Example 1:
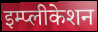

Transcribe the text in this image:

इम्प्लीकेशन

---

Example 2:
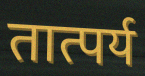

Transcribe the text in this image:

तात्पर्य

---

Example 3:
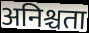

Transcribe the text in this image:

अनिश्चता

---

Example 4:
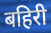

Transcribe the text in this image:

बहिरी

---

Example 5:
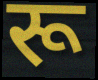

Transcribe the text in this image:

रू